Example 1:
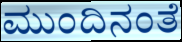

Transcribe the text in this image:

ಮುಂದಿನಂತೆ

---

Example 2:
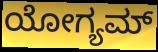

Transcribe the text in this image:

ಯೋಗ್ಯಮ್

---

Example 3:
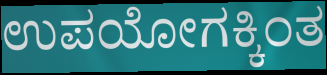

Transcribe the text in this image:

ಉಪಯೋಗಕ್ಕಿಂತ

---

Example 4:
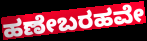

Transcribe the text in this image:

ಹಣೇಬರಹವೇ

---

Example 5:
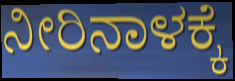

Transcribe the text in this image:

ನೀರಿನಾಳಕ್ಕೆ